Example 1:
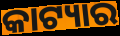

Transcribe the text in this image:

କାଟ୍ୟାର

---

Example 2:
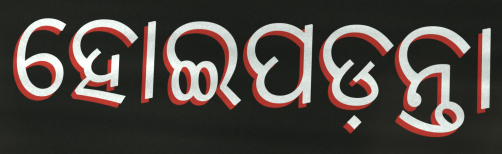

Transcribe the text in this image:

ହୋଇପଡ଼ନ୍ତା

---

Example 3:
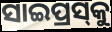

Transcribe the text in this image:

ସାଇପ୍ରସ୍‌କୁ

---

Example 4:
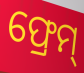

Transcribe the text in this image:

ଫ୍ରେମ୍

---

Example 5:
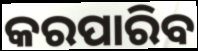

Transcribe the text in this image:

କରପାରିବ